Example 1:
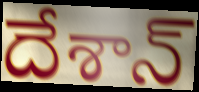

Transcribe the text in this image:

దేశాన్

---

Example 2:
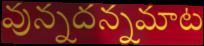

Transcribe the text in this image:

వున్నదన్నమాట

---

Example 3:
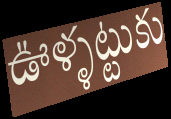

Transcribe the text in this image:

ఊళ్ళట్టుకు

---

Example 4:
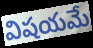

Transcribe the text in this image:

విషయమే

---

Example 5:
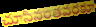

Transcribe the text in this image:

చూసినంతవరకూ